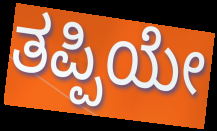
ತಪ್ಪಿಯೇ